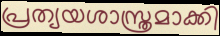
പ്രത്യയശാസ്ത്രമാക്കി